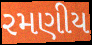
રમણીય